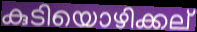
കുടിയൊഴിക്കല്